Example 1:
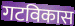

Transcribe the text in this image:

गटविकास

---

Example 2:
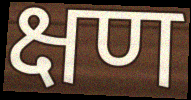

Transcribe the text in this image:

क्षण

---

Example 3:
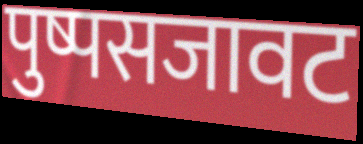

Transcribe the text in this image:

पुष्पसजावट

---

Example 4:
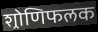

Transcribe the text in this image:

श्रोणिफलक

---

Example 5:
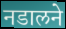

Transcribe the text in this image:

नडालने